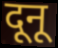
दूनू